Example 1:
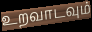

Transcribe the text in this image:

உறவாடவும்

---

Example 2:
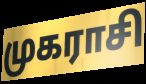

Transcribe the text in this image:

முகராசி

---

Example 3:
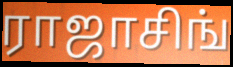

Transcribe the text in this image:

ராஜாசிங்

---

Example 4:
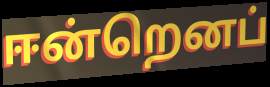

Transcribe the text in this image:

ஈன்றெனப்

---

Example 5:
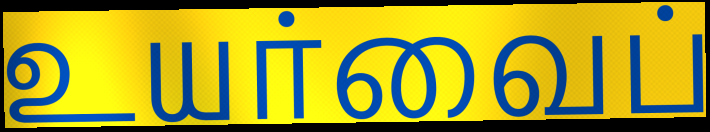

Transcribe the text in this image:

உயர்வைப்